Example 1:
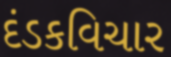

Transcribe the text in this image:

દંડકવિચાર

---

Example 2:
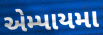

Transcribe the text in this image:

એમ્પાયમા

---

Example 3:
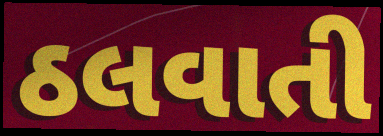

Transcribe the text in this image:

ઠલવાતી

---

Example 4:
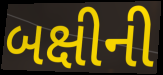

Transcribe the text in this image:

બક્ષીની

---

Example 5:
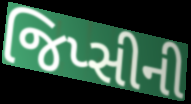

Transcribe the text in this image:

જિપ્સીની